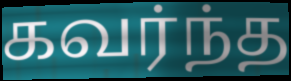
கவர்ந்த